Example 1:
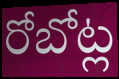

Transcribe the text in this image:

రోబోట్ల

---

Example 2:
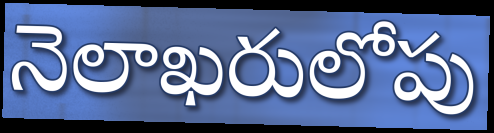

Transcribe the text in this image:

నెలాఖరులోపు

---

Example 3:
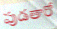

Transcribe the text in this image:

పుడతారో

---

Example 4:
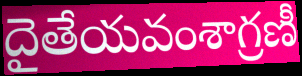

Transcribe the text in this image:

దైతేయవంశాగ్రణీ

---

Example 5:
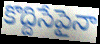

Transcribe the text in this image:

కొద్దిసేపైనా